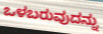
ಒಳಬರುವುದನ್ನು